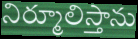
నిర్మూలిస్తాను